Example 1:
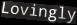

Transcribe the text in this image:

Lovingly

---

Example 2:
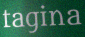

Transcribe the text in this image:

tagina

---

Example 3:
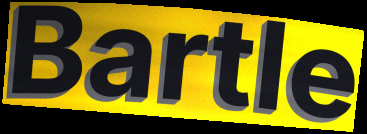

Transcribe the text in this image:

Bartle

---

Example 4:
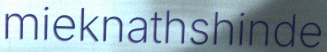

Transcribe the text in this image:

mieknathshinde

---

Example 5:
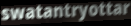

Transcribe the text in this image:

swatantryottar